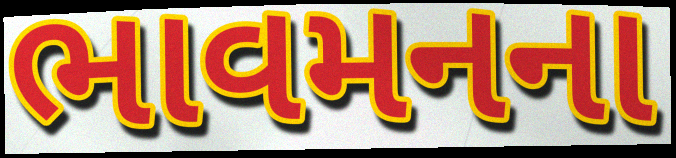
ભાવમનના